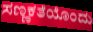
ಸಣ್ಣಕತೆಯೊಂದು